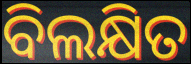
ବିଲକ୍ଷିତ